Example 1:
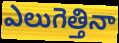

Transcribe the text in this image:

ఎలుగెత్తినా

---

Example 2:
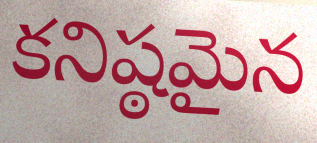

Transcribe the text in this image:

కనిష్ఠమైన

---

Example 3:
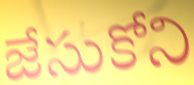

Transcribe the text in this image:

జేసుకోని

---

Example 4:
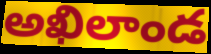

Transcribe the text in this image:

అఖిలాండ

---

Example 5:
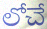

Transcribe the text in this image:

లోచే